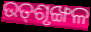
ଉତ୍‌ଶୃଙ୍ଖଳ